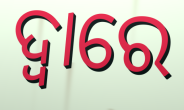
ଦ୍ବାରେ